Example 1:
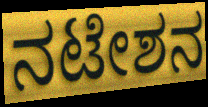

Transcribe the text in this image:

ನಟೇಶನ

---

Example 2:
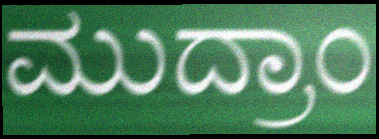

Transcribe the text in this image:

ಮುದ್ರಾಂ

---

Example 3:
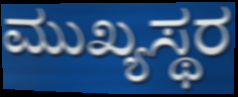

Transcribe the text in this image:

ಮುಖ್ಯಸ್ಥರ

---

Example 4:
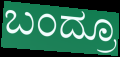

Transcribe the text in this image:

ಬಂದ್ರೂ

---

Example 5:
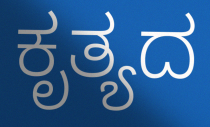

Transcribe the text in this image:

ಕೃತ್ಯದ